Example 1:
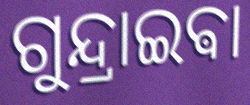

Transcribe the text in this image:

ଗୁନ୍ଦ୍ରାଇଵା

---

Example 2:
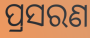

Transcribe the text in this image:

ପ୍ରସରଣ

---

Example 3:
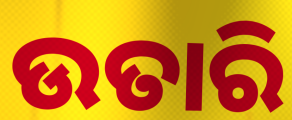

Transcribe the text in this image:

ଉତାରି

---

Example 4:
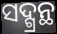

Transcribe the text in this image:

ସଦ୍ଗ୍ରନ୍ଥ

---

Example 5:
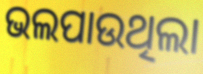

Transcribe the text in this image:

ଭଲପାଉଥିଲା